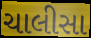
ચાલીસા